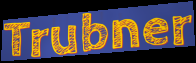
Trubner